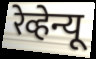
रेव्हेन्यू